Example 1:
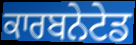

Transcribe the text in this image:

ਕਾਰਬਨੇਟੇਡ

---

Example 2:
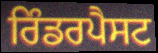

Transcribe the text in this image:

ਰਿੰਡਰਪੈਸਟ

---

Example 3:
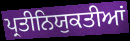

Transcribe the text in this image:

ਪ੍ਰਤੀਨਿਯੁਕਤੀਆਂ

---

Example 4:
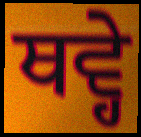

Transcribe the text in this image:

ਥਵ੍ਹੇ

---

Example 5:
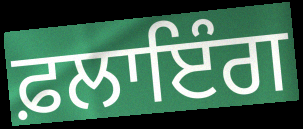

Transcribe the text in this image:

ਫ਼ਲਾਇੰਗ